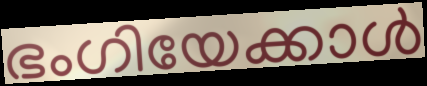
ഭംഗിയേക്കാൾ